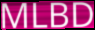
MLBD